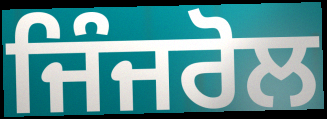
ਜਿੰਜਰੋਲ